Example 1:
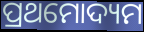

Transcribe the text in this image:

ପ୍ରଥମୋଦ୍ୟମ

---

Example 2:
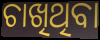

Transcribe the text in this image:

ଚାଖିଥିବା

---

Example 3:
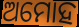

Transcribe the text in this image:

ଅମୋହ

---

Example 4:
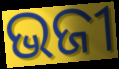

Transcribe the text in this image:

ଭଜୀ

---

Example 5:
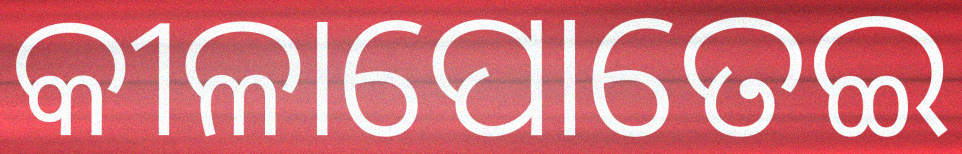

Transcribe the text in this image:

କୀଳାପୋତେଇ